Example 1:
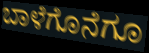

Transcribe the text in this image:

ಬಾಳೆಗೊನೆಗೂ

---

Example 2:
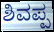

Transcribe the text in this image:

ಶಿವಪ್ಪ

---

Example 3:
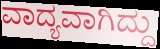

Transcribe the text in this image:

ವಾದ್ಯವಾಗಿದ್ದು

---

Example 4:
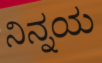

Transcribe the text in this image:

ನಿನ್ನಯ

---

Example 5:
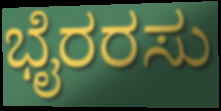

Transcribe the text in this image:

ಭೈರರಸು